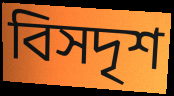
বিসদৃশ